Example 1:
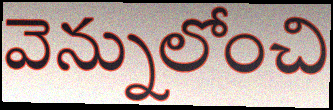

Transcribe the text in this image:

వెన్నులోంచి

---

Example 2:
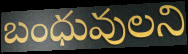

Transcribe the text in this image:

బంధువులని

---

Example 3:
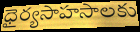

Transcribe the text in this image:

ధైర్యసాహసాలకు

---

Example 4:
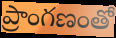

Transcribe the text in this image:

ప్రాంగణంతో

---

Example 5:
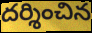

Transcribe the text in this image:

దర్శించిన